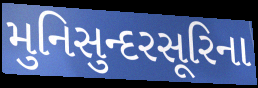
મુનિસુન્દરસૂરિના